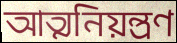
আত্মনিয়ন্ত্ৰণ